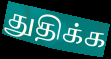
துதிக்க